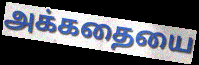
அக்கதையை